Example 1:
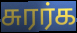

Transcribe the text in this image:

சுரர்க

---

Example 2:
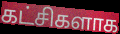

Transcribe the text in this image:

கட்சிகளாக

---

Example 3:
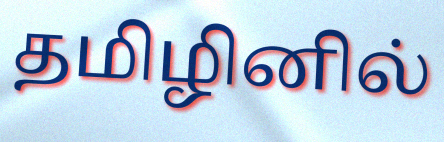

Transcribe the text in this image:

தமிழினில்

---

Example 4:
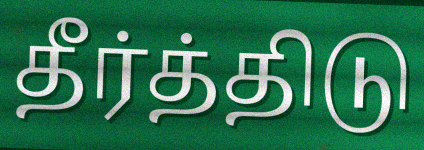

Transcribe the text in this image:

தீர்த்திடு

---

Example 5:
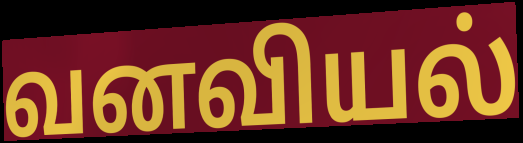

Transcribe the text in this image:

வனவியல்